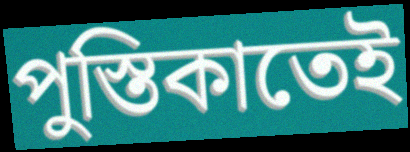
পুস্তিকাতেই